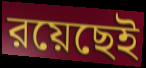
রয়েছেই